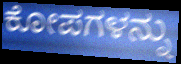
ಕೋಪಗಳನ್ನು